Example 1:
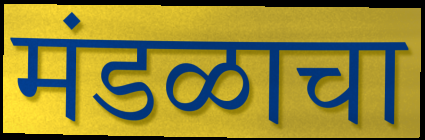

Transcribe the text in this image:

मंडळाचा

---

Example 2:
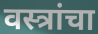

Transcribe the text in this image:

वस्त्रांचा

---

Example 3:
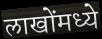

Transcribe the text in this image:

लाखोंमध्ये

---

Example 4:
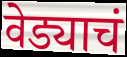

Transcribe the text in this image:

वेड्याचं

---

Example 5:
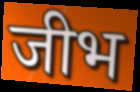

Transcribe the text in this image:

जीभ